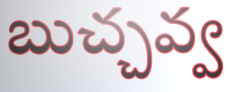
బుచ్చవ్వ